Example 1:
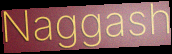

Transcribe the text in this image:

Naggash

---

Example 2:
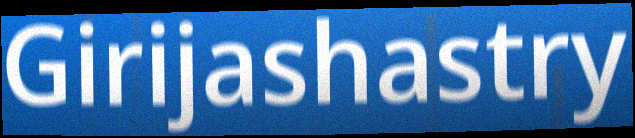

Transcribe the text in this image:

Girijashastry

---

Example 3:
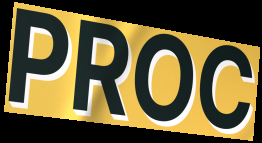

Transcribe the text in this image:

PROC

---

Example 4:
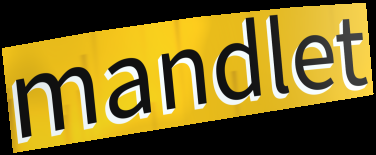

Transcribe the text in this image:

mandlet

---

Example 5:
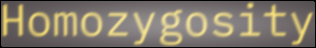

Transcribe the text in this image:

Homozygosity